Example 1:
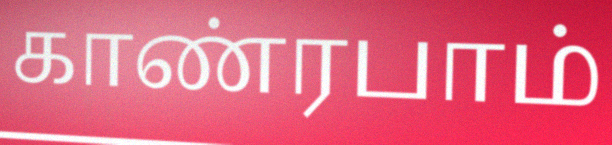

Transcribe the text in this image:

காண்ரபாம்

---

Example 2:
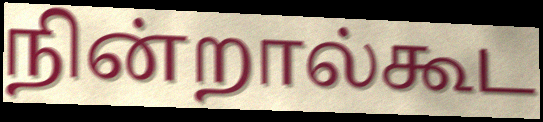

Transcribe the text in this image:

நின்றால்கூட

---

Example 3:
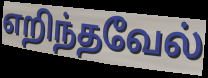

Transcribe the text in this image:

எறிந்தவேல்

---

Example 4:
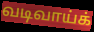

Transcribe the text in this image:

வடிவாய்க்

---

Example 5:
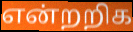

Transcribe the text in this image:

என்றறிக